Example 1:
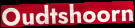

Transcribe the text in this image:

Oudtshoorn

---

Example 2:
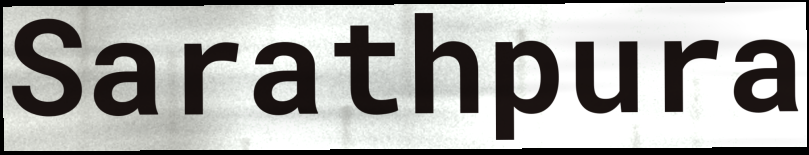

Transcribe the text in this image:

Sarathpura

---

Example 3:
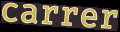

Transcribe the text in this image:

carrer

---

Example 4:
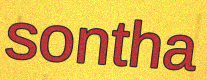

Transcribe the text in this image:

sontha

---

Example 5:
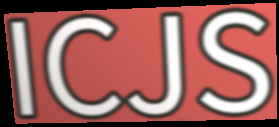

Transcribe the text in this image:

ICJS